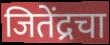
जितेंद्रचा